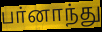
பர்னாந்து